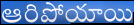
ఆరిపోయాయి